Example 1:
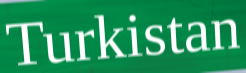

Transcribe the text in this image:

Turkistan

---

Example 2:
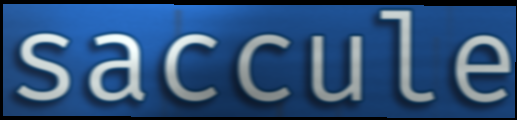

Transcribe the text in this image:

saccule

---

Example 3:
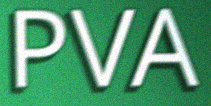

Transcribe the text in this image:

PVA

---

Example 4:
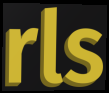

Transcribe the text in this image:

rls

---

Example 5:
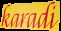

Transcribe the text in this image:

karadi